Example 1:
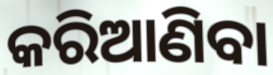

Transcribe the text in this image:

କରିଆଣିବା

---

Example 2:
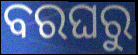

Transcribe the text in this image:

ବରଘରୁ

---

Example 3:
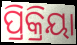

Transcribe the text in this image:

ପ୍ରିକ୍ରିୟା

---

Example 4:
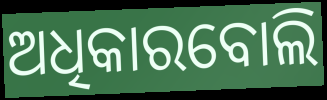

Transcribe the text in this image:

ଅଧିକାରବୋଲି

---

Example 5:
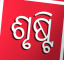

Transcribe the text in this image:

ଶୃଷ୍ଟି